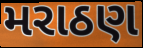
મરાઠણ